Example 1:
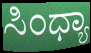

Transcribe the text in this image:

ಸಿಂಧ್ಯಾ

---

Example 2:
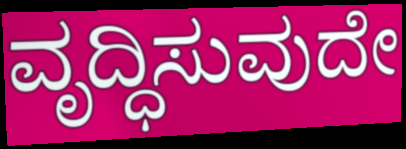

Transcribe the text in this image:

ವೃದ್ಧಿಸುವುದೇ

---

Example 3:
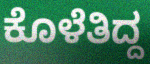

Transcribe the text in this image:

ಕೊಳೆತಿದ್ದ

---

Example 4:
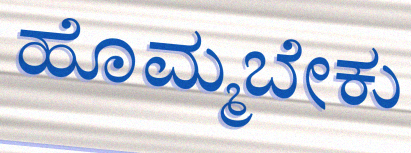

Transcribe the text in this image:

ಹೊಮ್ಮಬೇಕು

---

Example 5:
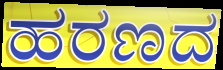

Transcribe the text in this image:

ಹರಣದ